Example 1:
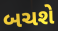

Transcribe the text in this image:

બચશે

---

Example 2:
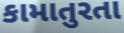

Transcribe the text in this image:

કામાતુરતા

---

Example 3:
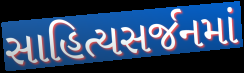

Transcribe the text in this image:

સાહિત્યસર્જનમાં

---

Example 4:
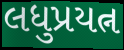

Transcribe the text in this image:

લધુપ્રયત્ન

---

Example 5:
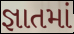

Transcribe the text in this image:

જ્ઞાતમાં